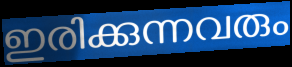
ഇരിക്കുന്നവരും